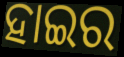
ହାଇର